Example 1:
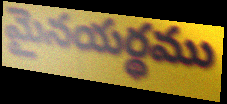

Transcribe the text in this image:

మైనయర్థము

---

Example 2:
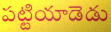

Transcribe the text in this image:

పట్టియాడెడు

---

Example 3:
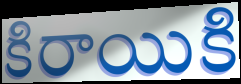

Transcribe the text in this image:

కిరాయికి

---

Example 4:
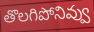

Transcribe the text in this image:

తొలగిపోనివ్వు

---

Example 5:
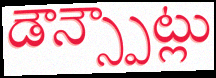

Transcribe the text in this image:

డౌన్స్పౌట్లు